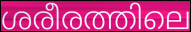
ശരീരത്തിലെ